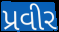
પ્રવીર